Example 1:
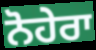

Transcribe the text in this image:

ਨੋਹੇਰਾ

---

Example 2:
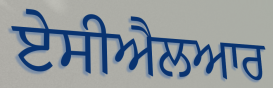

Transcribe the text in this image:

ਏਸੀਐਲਆਰ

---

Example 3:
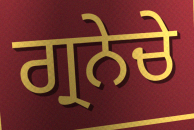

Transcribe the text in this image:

ਗ੍ਰਨੇਚੇ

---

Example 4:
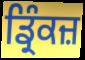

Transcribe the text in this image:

ਡ੍ਰਿੰਕਜ਼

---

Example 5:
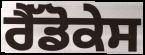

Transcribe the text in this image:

ਰੈੱਡੋਕੇਸ